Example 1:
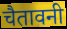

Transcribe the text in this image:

चैतावनी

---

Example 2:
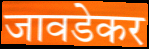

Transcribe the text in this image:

जावडेकर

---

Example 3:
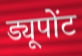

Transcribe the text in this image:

ड्यूपोंट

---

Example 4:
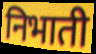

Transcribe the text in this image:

निभाती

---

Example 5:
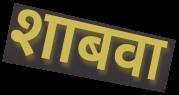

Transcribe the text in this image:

शाबवा